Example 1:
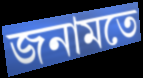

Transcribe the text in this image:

জনামতে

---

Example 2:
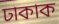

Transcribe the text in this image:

ঢাকাক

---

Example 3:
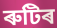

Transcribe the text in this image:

ৰুটিৰ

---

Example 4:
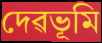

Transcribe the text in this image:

দেৱভূমি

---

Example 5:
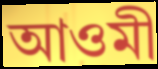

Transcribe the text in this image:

আওমী